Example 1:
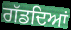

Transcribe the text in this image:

ਗੱਡਦਿਆਂ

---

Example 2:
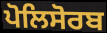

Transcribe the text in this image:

ਪੋਲਿਸੋਰਬ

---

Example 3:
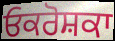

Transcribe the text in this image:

ਓਕਰੋਸ਼ਕਾ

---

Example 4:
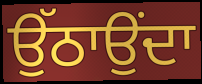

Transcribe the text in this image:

ਉੱਠਾਉਂਦਾ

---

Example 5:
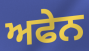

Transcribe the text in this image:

ਅਫੇਨ